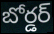
బోర్డర్